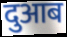
दुआब